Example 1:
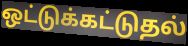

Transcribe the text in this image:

ஒட்டுக்கட்டுதல்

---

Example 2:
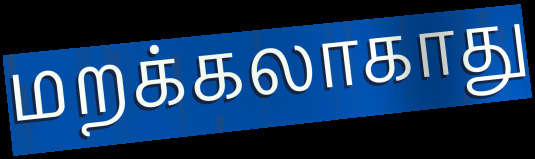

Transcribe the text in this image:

மறக்கலாகாது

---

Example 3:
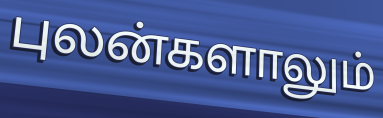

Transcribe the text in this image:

புலன்களாலும்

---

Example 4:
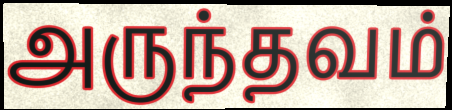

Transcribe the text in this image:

அருந்தவம்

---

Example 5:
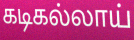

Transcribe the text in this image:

கடிகல்லாய்